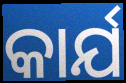
କାର୍ଯ